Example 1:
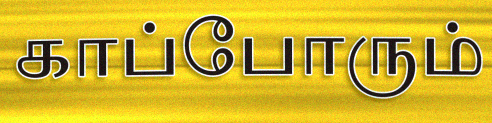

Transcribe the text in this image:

காப்போரும்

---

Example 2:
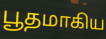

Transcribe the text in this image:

பூதமாகிய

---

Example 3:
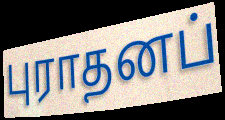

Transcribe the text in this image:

புராதனப்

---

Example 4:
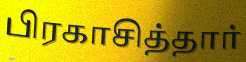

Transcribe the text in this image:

பிரகாசித்தார்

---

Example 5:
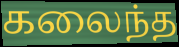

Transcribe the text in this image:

கலைந்த